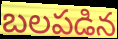
బలపడిన